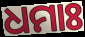
ଧମାଃ